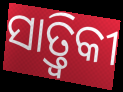
ସାତ୍ତ୍ୱିକୀ